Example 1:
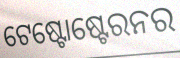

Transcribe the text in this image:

ଟେଷ୍ଟୋଷ୍ଟେରନର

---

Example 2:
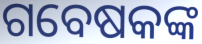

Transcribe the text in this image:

ଗବେଷକଙ୍କ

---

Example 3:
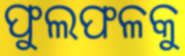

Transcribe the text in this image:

ଫୁଲଫଳକୁ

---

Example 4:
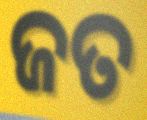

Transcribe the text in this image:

ଜତ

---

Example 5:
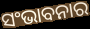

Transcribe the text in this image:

ସଂଭାବନାର